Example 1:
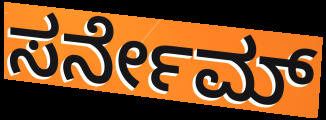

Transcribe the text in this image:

ಸರ್ನೇಮ್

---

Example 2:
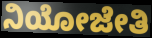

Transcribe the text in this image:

ನಿಯೋಜೇತಿ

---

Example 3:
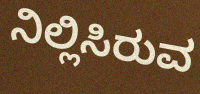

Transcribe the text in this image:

ನಿಲ್ಲಿಸಿರುವ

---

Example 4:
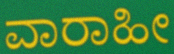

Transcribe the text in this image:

ವಾರಾಹೀ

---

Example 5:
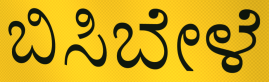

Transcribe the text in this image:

ಬಿಸಿಬೇಳೆ